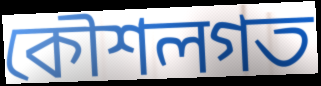
কৌশলগত